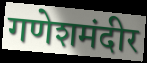
गणेशमंदीर